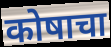
कोषाचा